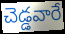
చెడ్డవారే